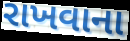
રાખવાના